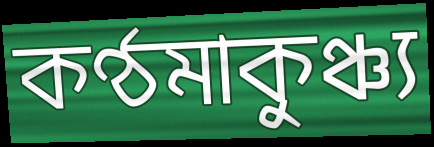
কণ্ঠমাকুঞ্চ্য